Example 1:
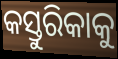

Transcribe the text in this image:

କସ୍ତୁରିକାକୁ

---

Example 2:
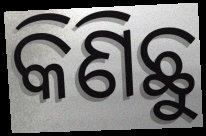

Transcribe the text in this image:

କିଣିଛୁ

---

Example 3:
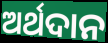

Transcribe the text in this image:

ଅର୍ଥଦାନ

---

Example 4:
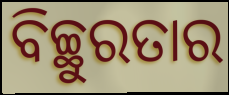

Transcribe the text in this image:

ବିଚ୍ଛୁରତାର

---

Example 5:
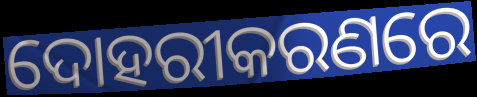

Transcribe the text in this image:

ଦୋହରୀକରଣରେ